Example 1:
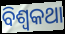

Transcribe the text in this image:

ବିଶ୍ୱକଥା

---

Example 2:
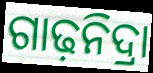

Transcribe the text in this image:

ଗାଢ଼ନିଦ୍ରା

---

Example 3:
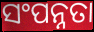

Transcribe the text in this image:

ସଂପନ୍ନତା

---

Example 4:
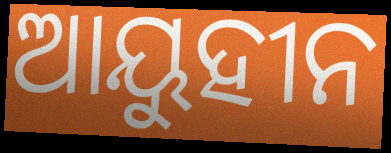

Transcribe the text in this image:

ଆୟୁହୀନ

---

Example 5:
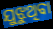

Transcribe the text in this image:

ଯୁଝୁଥିବା